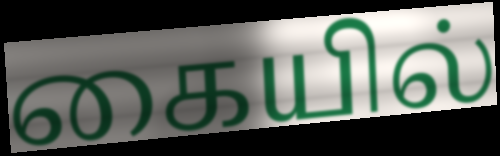
கையில்